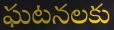
ఘటనలకు